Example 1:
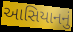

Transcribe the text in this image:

આસિયાનનું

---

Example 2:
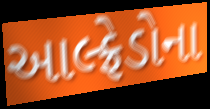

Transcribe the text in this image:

આલ્ફ્રેડોના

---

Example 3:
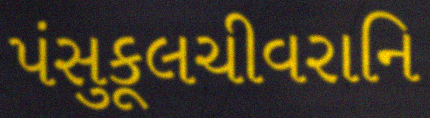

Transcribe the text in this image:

પંસુકૂલચીવરાનિ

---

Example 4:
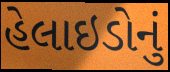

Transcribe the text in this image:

હેલાઇડોનું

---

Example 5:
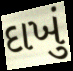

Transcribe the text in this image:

દાખું